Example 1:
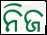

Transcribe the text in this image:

ନିଜ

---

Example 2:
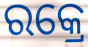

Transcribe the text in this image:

ରକ୍ରେ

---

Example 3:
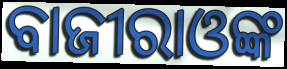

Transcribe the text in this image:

ବାଜୀରାଓଙ୍କ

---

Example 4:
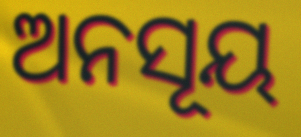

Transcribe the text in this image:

ଅନସୂୟ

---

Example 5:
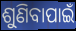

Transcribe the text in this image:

ଶୁଣିବାପାଇଁ